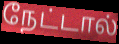
நேட்டால்